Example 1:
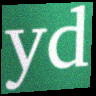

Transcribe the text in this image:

yd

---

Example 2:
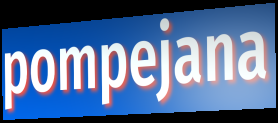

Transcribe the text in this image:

pompejana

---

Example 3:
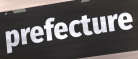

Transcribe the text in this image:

prefecture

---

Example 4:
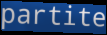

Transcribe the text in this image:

partite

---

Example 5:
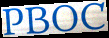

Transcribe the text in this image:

PBOC